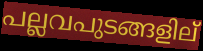
പല്ലവപുടങ്ങളില്